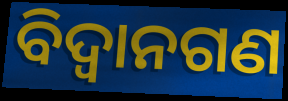
ବିଦ୍ଵାନଗଣ